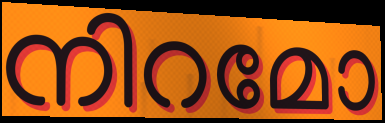
നിറമോ